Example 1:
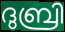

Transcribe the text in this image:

ദുബ്രി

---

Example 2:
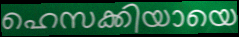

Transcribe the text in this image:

ഹെസക്കിയായെ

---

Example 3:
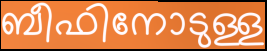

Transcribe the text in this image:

ബീഫിനോടുള്ള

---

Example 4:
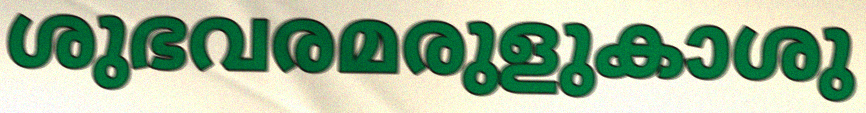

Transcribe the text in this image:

ശുഭവരമരുളുകാശു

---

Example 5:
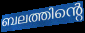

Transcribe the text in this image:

ബലത്തിന്റെ